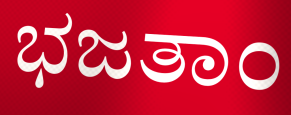
ಭಜತಾಂ